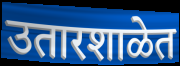
उतारशाळेत